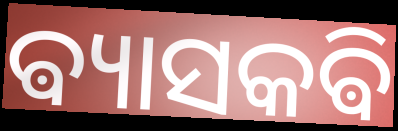
ଵ୍ୟାସକଵି